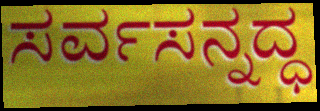
ಸರ್ವಸನ್ನದ್ಧ